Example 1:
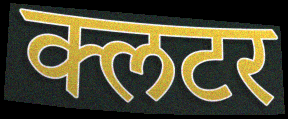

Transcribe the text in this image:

क्लटर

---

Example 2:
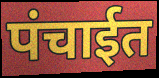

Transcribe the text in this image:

पंचाईत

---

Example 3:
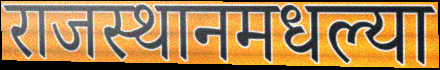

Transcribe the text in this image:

राजस्थानमधल्या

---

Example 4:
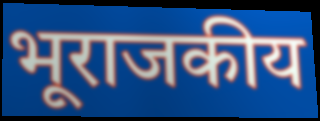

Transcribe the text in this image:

भूराजकीय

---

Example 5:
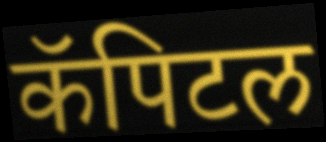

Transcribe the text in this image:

कॅपिटल